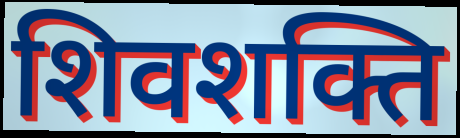
शिवशक्ति